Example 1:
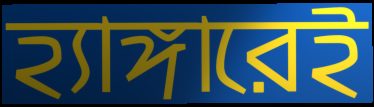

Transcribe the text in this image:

হ্যাঙ্গারেই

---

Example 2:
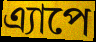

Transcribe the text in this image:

এ্যাপে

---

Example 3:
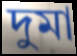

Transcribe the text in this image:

দুমা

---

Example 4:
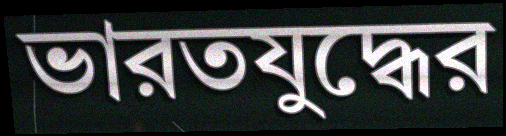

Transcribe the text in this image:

ভারতযুদ্ধের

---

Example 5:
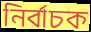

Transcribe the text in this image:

নির্বাচক